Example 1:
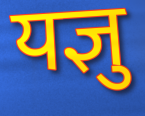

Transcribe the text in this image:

यज्ञु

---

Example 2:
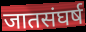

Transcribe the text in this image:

जातसंघर्ष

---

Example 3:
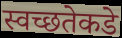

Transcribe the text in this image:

स्वच्छतेकडे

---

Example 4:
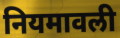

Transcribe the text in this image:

नियमावली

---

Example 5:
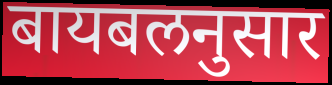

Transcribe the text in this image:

बायबलनुसार